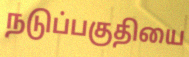
நடுப்பகுதியை